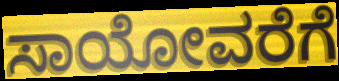
ಸಾಯೋವರೆಗೆ